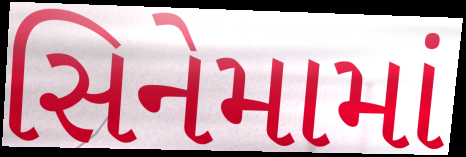
સિનેમામાં